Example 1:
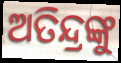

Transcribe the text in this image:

ଅତିନ୍ଦ୍ରଙ୍କୁ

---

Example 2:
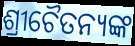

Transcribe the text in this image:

ଶ୍ରୀଚୈତନ୍ୟଙ୍କ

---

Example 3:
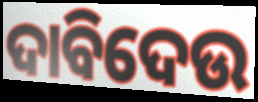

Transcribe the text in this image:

ଦାବିଦେଉ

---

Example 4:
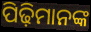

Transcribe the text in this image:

ପିଢ଼ିମାନଙ୍କ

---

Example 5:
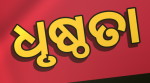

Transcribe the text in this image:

ଧୃଷ୍ଠତା